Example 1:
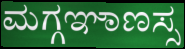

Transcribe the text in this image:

ಮಗ್ಗಞಾಣಸ್ಸ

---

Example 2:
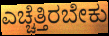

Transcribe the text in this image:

ಎಚ್ಚೆತ್ತಿರಬೇಕು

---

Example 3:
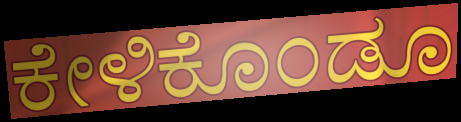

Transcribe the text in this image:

ಕೇಳಿಕೊಂಡೂ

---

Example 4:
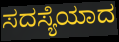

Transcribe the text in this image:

ಸದಸ್ಯೆಯಾದ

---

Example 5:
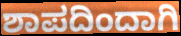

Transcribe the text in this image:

ಶಾಪದಿಂದಾಗಿ